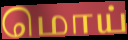
மொய்